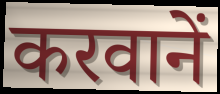
करवानें